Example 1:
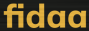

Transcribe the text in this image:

fidaa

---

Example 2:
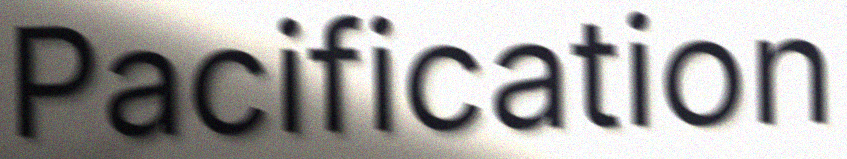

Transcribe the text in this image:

Pacification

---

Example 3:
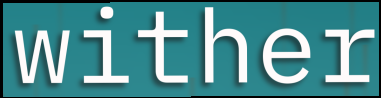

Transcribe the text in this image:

wither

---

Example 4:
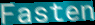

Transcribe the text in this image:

Fasten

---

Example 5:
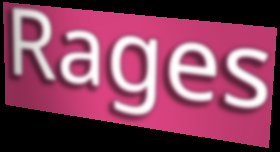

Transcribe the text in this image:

Rages